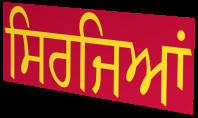
ਸਿਰਜਿਆਂ